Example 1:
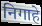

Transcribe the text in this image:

निगाहे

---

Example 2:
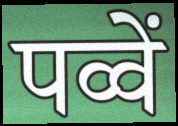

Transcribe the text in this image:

पव्वें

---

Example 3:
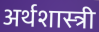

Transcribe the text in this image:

अर्थशास्त्री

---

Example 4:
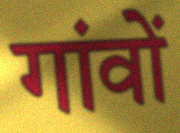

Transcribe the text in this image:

गांवों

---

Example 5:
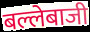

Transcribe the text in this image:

बल्लेबाजी